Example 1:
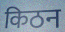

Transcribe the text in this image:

किठन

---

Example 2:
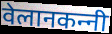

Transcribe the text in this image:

वेलानकन्नी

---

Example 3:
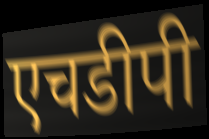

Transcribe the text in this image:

एचडीपी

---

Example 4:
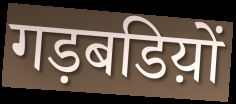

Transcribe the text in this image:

गड़बडिय़ों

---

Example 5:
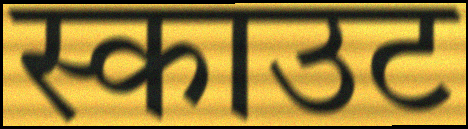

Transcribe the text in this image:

स्काउट